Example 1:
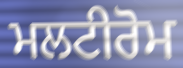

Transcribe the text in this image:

ਮਲਟੀਰੋਮ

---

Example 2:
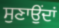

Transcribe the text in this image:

ਸੁਣਾਉਂਦਾਂ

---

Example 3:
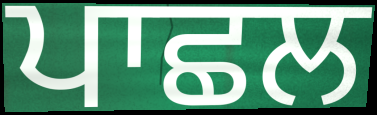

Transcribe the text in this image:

ਪਾਛਲ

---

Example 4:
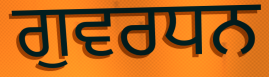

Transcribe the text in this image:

ਗੁਵਰਧਨ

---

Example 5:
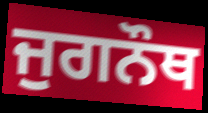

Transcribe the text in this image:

ਜੁਗਨੌਥ